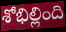
శోభిల్లింది